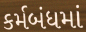
કર્મબંધમાં